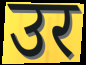
उर